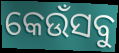
କେଉଁସବୁ